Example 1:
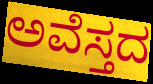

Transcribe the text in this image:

ಅವೆಸ್ತದ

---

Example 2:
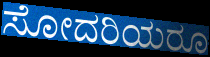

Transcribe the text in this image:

ಸೋದರಿಯರೂ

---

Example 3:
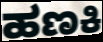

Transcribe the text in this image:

ಹಣಕಿ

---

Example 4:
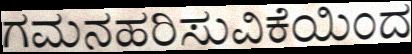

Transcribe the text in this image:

ಗಮನಹರಿಸುವಿಕೆಯಿಂದ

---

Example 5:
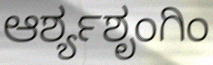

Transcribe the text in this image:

ಆರ್ಶ್ಯಶೃಂಗಿಂ